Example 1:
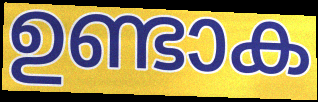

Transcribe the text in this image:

ഉണ്ടാക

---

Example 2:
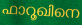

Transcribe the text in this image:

ഫാറൂഖിനെ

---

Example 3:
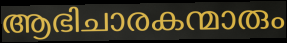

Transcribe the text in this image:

ആഭിചാരകന്മാരും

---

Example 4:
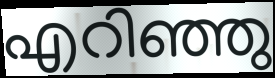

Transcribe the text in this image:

എറിഞ്ഞു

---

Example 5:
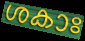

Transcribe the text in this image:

ശകാഃ